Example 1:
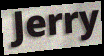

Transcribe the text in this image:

Jerry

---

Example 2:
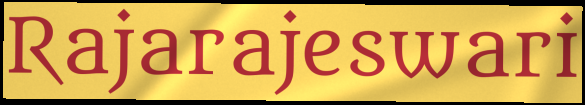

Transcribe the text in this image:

Rajarajeswari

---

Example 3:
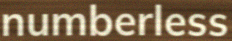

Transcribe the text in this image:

numberless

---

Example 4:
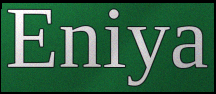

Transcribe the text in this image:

Eniya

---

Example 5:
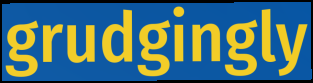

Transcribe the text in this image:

grudgingly